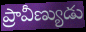
ప్రావీణ్యుడు